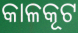
କାଳକୂଟ